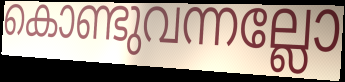
കൊണ്ടുവന്നല്ലോ